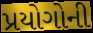
પ્રયોગોની